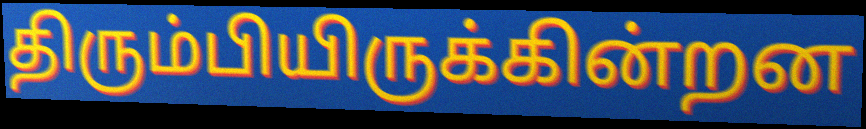
திரும்பியிருக்கின்றன